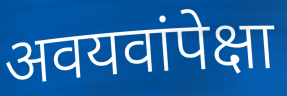
अवयवांपेक्षा